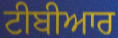
ਟੀਬੀਆਰ